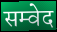
सम्वेद